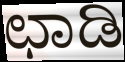
ಛಾಡಿ